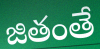
జితంతే